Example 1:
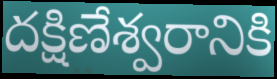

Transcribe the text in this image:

దక్షిణేశ్వరానికి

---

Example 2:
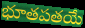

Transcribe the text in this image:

భూతపతయే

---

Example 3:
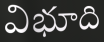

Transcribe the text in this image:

విభూది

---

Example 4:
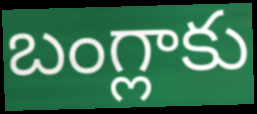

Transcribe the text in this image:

బంగ్లాకు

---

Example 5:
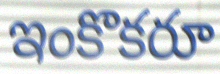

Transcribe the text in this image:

ఇంకొకరూ